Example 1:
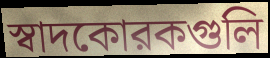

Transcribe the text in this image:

স্বাদকোরকগুলি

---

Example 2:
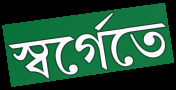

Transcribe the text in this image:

স্বর্গেতে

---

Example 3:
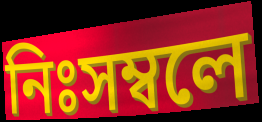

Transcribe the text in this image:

নিঃসম্বলে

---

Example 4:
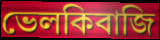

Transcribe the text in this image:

ভেলকিবাজি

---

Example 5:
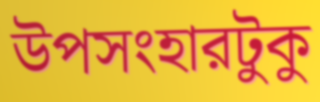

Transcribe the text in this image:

উপসংহারটুকু